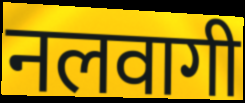
नलवागी